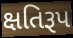
ક્ષતિરૂપ